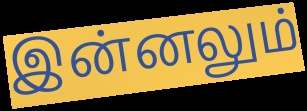
இன்னலும்